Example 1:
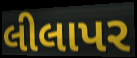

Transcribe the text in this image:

લીલાપર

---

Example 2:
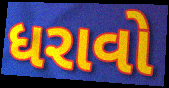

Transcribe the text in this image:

ધરાવો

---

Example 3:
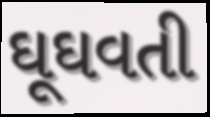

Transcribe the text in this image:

ઘૂઘવતી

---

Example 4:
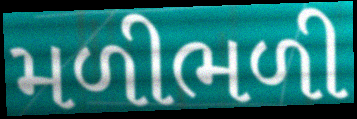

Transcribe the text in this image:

મળીભળી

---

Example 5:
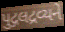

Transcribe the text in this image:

પુદ્ગલદ્રવ્યને